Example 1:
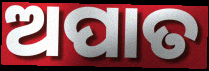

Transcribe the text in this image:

ଅପାତ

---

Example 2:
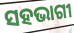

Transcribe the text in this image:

ସହଭାଗୀ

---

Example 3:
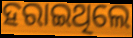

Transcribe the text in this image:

ହରାଇଥିଲେ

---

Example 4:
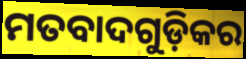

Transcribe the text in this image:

ମତବାଦଗୁଡ଼ିକର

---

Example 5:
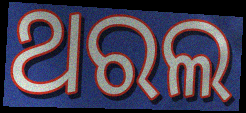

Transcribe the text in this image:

ଥରଲ